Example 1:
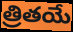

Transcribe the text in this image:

త్రితయే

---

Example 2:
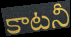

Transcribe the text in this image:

కాటనీ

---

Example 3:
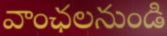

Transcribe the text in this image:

వాంఛలనుండి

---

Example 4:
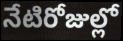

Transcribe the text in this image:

నేటిరోజుల్లో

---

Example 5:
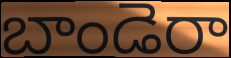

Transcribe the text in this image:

బాండెరా